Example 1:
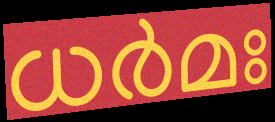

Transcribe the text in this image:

ധർമഃ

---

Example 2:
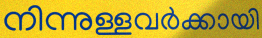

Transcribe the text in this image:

നിന്നുള്ളവർക്കായി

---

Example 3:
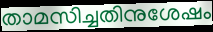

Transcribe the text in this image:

താമസിച്ചതിനുശേഷം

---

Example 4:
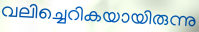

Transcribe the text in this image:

വലിച്ചെറികയായിരുന്നു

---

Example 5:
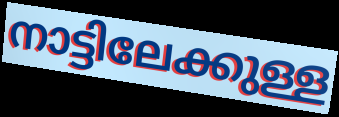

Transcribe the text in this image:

നാട്ടിലേക്കുള്ള